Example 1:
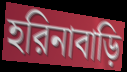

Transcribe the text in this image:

হরিনাবাড়ি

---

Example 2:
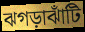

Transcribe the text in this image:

ঝগড়াঝাঁটি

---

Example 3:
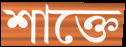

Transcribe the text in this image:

শাক্তে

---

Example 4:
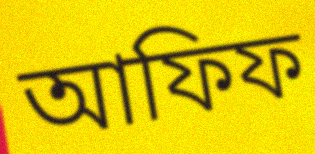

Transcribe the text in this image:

আফিফ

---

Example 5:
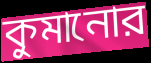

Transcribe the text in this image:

কুমানোর